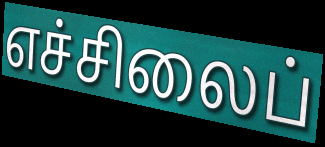
எச்சிலைப்